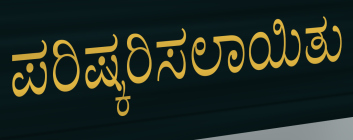
ಪರಿಷ್ಕರಿಸಲಾಯಿತು